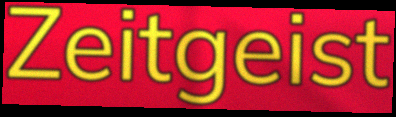
Zeitgeist